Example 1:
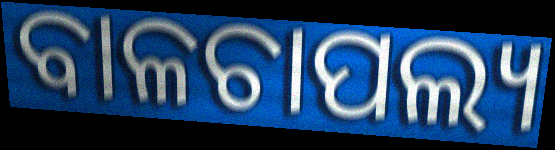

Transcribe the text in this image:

ବାଳଚାପଲ୍ୟ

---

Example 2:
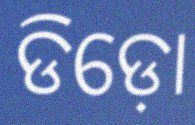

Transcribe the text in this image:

ଡିଡ଼ୋ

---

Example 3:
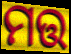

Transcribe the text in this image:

ମତ୍ତ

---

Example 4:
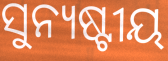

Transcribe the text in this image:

ସୁନ୍ୟଷ୍ଟୀୟ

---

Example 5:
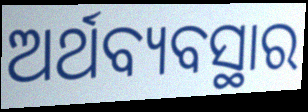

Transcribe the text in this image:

ଅର୍ଥବ୍ୟବସ୍ଥାର